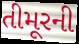
તીમૂરની